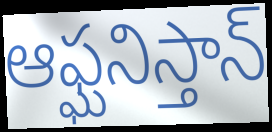
ఆఫ్ఘనిస్తాన్